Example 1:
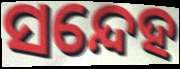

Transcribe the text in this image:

ସନ୍ଦେହ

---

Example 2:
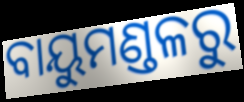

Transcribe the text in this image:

ବାୟୁମଣ୍ଡଳରୁ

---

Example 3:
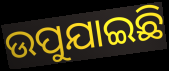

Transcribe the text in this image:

ଉପୁଯାଇଛି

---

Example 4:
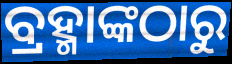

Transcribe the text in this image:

ବ୍ରହ୍ମାଙ୍କଠାରୁ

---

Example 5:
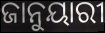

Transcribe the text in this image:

ଜାନୁୟାରୀ